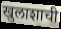
खुलाशाची